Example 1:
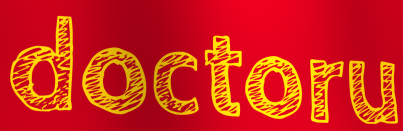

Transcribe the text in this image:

doctoru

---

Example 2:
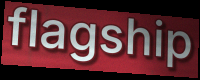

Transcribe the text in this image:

flagship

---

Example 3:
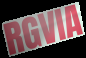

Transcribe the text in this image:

RGVIA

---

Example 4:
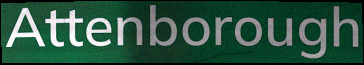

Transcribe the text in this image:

Attenborough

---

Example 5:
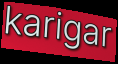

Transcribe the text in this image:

karigar